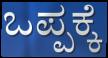
ಒಪ್ಪಕ್ಕೆ